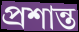
প্ৰশান্ত